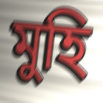
মুহি